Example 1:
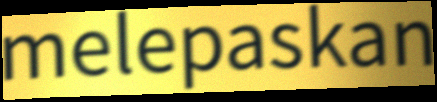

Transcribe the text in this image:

melepaskan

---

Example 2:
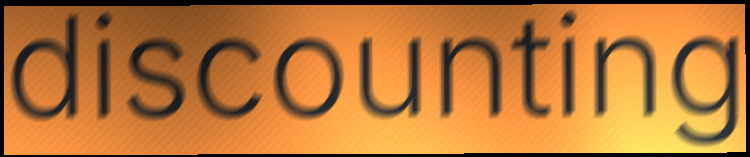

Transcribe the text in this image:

discounting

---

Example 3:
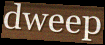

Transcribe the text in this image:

dweep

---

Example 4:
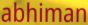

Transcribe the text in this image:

abhiman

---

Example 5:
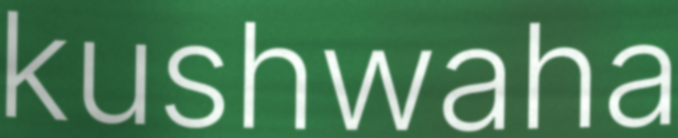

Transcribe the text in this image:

kushwaha